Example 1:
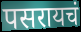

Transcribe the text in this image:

पसरायचं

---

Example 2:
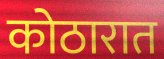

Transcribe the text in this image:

कोठारात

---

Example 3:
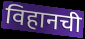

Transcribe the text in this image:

विहानची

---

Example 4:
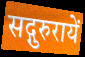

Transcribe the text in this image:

सद्गुरुरायें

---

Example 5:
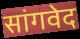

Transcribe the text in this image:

सांगवेद